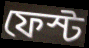
ফেস্ট